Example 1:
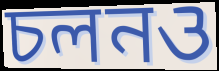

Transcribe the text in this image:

চলনও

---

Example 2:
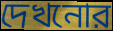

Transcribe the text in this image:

দেখনোর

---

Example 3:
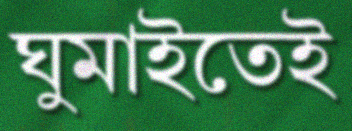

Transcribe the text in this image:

ঘুমাইতেই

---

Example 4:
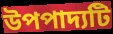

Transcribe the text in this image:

উপপাদ্যটি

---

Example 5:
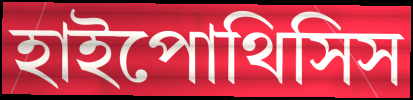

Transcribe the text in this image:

হাইপোথিসিস